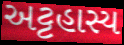
અટ્ટહાસ્ય